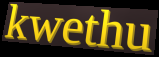
kwethu